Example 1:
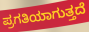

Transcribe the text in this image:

ಪ್ರಗತಿಯಾಗುತ್ತದೆ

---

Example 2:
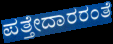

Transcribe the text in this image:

ಪತ್ತೇದಾರರಂತೆ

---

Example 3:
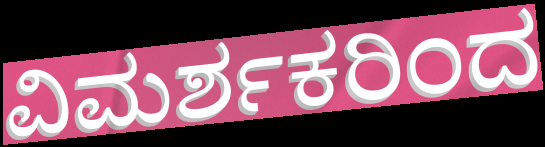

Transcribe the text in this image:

ವಿಮರ್ಶಕರಿಂದ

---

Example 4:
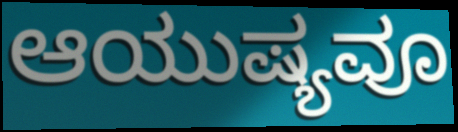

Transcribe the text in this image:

ಆಯುಷ್ಯವೂ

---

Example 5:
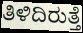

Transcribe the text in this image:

ತಿಳಿದಿರುತ್ತೆ